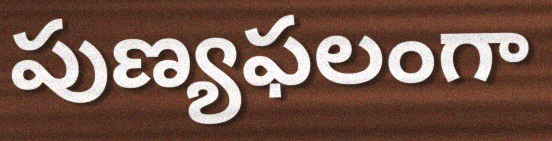
పుణ్యఫలంగా